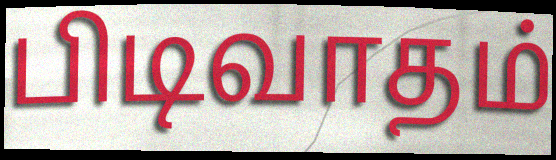
பிடிவாதம்